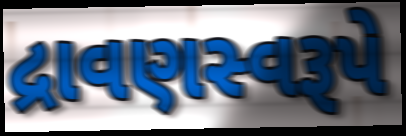
દ્રાવણસ્વરૂપે